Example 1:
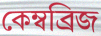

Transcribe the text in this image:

কেম্বব্ৰিজ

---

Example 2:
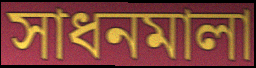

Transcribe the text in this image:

সাধনমালা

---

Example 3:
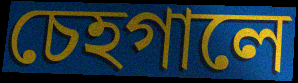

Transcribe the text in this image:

চেহগালে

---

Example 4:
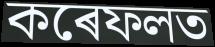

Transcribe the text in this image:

কৰেফলত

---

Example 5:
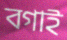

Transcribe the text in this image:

বগাই